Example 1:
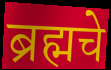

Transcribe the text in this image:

ब्रह्मचे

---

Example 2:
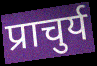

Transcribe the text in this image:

प्राचुर्य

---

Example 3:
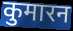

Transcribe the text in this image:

कुमारन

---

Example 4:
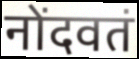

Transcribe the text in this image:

नोंदवतं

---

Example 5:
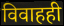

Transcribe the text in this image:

विवाहही